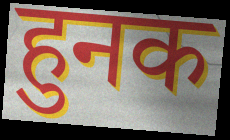
हुनक